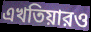
এখতিয়ারও